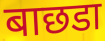
बाछडा